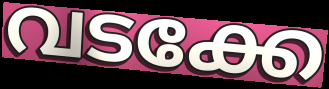
വടക്കേ